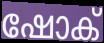
ഷോക്